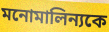
মনোমালিন্যকে